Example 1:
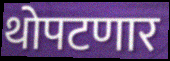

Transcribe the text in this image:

थोपटणार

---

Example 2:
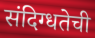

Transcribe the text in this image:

संदिग्धतेची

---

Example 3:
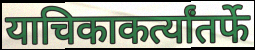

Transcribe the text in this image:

याचिकाकर्त्यांतर्फे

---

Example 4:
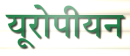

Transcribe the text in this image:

यूरोपीयन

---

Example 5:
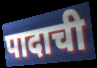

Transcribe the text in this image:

पादाची